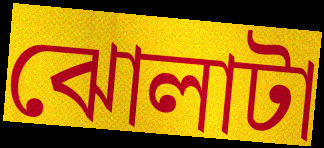
ঝোলাটা